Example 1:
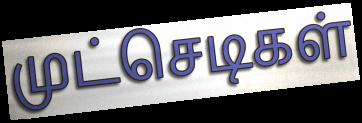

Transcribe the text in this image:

முட்செடிகள்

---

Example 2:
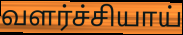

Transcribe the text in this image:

வளர்ச்சியாய்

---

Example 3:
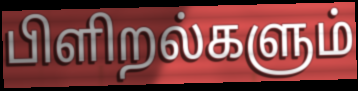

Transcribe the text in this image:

பிளிறல்களும்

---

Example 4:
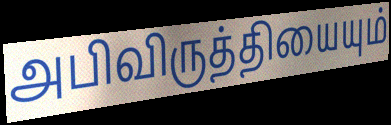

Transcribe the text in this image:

அபிவிருத்தியையும்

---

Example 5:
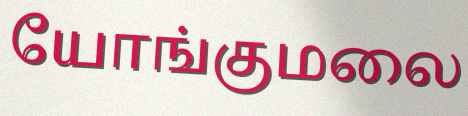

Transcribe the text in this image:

யோங்குமலை